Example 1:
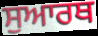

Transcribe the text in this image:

ਸੁਆਰਥ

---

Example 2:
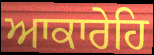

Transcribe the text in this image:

ਆਕਾਰੇਹਿ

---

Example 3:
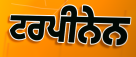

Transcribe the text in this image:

ਟਰਪੀਨੇਨ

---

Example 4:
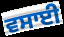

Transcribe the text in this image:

ਵਸਾਈ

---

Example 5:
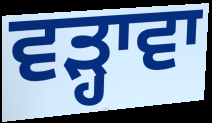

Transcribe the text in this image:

ਵੜ੍ਹਾਵਾ